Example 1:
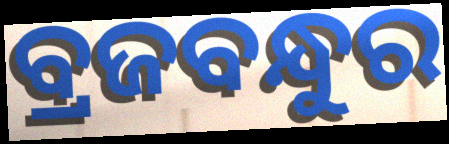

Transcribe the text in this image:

ବ୍ରଜବନ୍ଧୁର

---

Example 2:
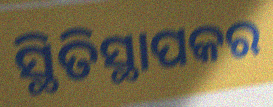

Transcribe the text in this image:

ସ୍ଥିତିସ୍ଥାପକର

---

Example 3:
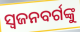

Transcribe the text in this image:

ସ୍ୱଜନବର୍ଗଙ୍କୁ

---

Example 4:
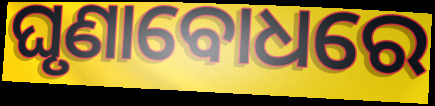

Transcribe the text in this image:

ଘୃଣାବୋଧରେ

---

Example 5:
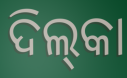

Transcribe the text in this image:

ଦିଲ୍‌କା